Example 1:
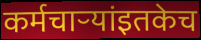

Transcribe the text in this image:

कर्मचाऱ्यांइतकेच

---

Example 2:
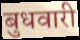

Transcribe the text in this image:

बुधवारी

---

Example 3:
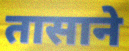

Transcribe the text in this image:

तासाने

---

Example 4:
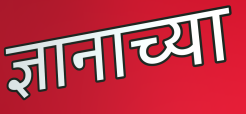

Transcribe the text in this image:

ज्ञानाच्या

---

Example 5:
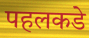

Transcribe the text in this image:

पहलकडे